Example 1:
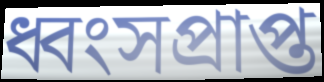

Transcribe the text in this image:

ধ্বংসপ্ৰাপ্ত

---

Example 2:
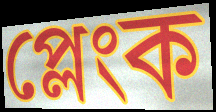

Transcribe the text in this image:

প্লেংক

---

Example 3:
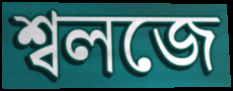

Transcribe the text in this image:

শ্বলজে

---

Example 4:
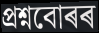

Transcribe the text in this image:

প্ৰশ্নবোৰৰ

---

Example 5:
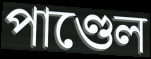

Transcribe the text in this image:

পাণ্ডেল